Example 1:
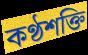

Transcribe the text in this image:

কণ্ঠশক্তি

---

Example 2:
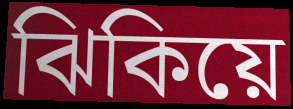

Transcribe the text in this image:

ঝিকিয়ে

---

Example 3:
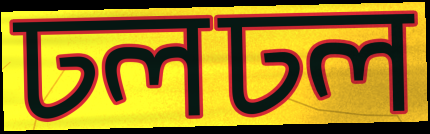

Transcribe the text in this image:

ঢলঢল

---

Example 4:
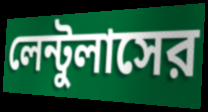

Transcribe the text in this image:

লেন্টুলাসের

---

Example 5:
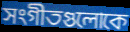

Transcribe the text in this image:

সংগীতগুলোকে